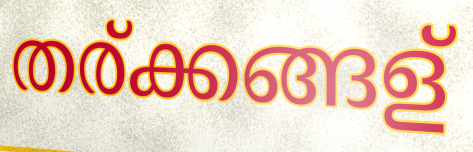
തര്ക്കങ്ങള്